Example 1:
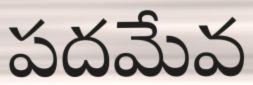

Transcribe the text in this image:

పదమేవ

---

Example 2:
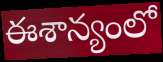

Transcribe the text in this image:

ఈశాన్యంలో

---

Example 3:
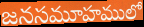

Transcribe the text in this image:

జనసమూహములో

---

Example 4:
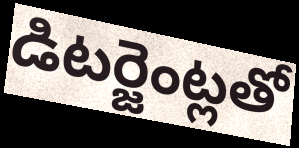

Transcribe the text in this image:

డిటర్జెంట్లతో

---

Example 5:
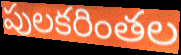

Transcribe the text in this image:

పులకరింతల